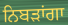
ਨਿਬੜਾਂਗਾ